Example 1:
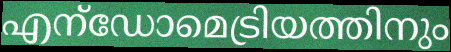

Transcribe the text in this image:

എന്ഡോമെട്രിയത്തിനും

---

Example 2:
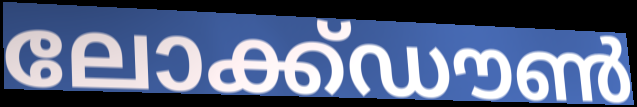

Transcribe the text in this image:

ലോക്ക്ഡൗൺ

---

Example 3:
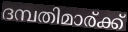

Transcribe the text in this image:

ദമ്പതിമാര്ക്ക്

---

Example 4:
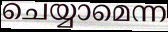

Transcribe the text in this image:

ചെയ്യാമെന്ന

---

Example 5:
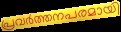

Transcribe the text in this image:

പ്രവർത്തനപരമായി